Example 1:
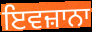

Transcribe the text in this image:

ਇਵਜ਼ਾਨਾ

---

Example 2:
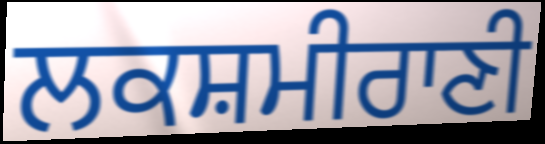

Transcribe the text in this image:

ਲਕਸ਼ਮੀਰਾਣੀ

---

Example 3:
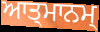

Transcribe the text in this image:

ਆਤ੍ਮਾਨਮ੍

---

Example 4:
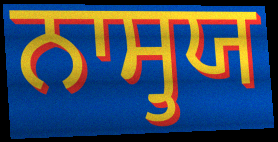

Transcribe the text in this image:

ਨਾਸ੍ਤਯ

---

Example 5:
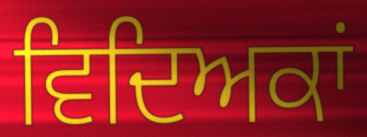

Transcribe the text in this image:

ਵਿਦਿਅਕਾਂ